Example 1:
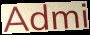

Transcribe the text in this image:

Admi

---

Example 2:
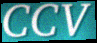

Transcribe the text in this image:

CCV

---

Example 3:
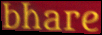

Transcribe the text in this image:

bhare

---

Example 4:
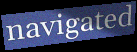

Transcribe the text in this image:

navigated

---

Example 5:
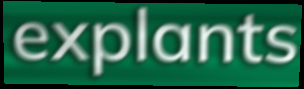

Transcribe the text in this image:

explants